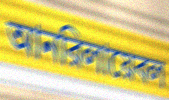
আনরিলায়েবল